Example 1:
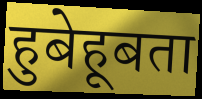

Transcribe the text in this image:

हुबेहूबता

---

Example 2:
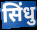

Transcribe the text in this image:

सिंधु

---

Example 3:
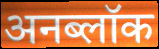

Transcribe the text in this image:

अनब्लॉक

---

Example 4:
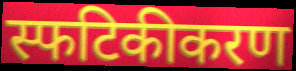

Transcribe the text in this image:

स्फटिकीकरण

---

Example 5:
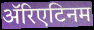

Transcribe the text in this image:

ॲरिएटिनम